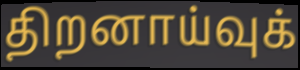
திறனாய்வுக்